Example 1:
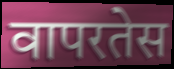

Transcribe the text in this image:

वापरतेस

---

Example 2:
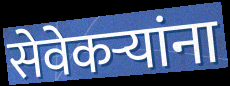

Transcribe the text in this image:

सेवेकऱ्यांना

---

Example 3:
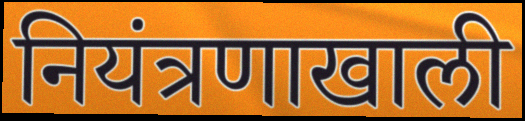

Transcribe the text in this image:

नियंत्रणाखाली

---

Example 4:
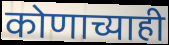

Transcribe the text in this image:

कोणाच्याही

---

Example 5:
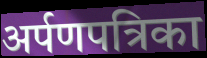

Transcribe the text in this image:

अर्पणपत्रिका